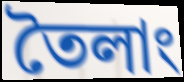
তৈলাং